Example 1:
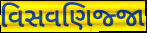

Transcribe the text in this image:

વિસવણિજ્જા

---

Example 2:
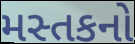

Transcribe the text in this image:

મસ્તકનો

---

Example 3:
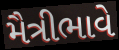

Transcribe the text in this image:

મૈત્રીભાવે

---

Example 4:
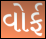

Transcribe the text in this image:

વોર્ફ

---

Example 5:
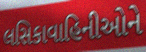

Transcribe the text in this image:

લસિકાવાહિનીઓને